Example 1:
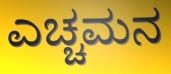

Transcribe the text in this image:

ಎಚ್ಚಮನ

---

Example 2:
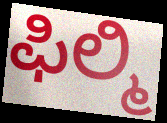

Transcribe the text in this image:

ಫಿಲ್ಮಿ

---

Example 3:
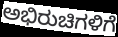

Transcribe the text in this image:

ಅಭಿರುಚಿಗಳಿಗೆ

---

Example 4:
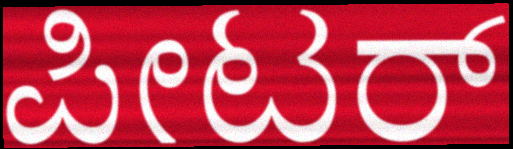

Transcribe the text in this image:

ಪೀಟರ್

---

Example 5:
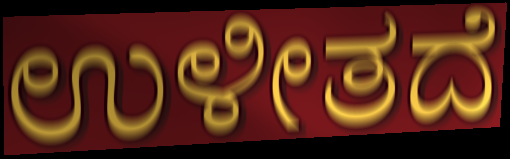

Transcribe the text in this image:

ಉಳೀತದೆ